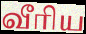
வீரிய